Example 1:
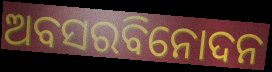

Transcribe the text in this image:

ଅବସରବିନୋଦନ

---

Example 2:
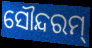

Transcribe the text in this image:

ସୌନ୍ଦରମ୍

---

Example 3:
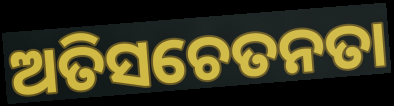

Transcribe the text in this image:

ଅତିସଚେତନତା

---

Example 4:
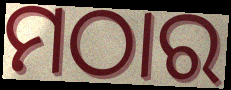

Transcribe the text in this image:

ମଠାର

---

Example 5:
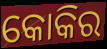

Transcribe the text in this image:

କୋକିର